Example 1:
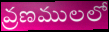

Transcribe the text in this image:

వ్రణములలో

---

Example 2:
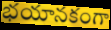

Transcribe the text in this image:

భయానకంగా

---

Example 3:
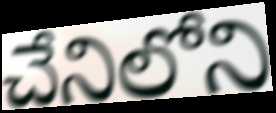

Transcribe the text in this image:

చేనిలోని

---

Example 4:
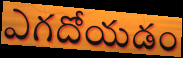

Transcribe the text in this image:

ఎగదోయడం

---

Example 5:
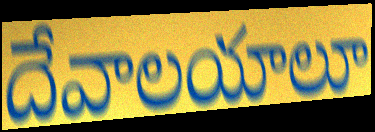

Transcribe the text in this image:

దేవాలయాలూ